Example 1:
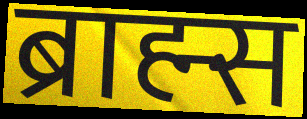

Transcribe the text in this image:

ब्राह्म्स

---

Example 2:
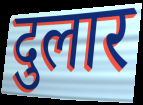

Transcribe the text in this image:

दुलार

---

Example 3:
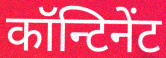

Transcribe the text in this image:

कॉन्टिनेंट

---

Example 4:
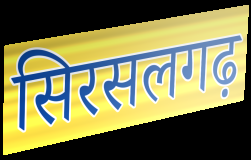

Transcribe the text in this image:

सिरसलगढ़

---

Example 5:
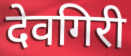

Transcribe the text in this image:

देवगिरी